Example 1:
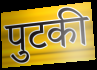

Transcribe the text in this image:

पुटकी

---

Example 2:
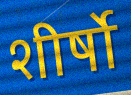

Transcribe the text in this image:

शीर्षो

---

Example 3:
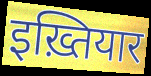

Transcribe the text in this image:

इख़्तियार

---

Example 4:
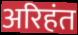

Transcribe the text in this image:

अरिहंत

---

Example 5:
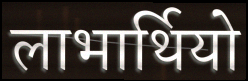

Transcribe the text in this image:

लाभार्थियो